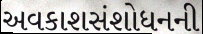
અવકાશસંશોધનની